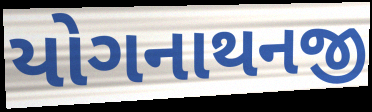
યોગનાથનજી